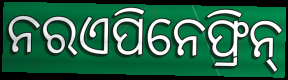
ନରଏପିନେଫ୍ରିନ୍